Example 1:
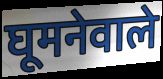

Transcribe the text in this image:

घूमनेवाले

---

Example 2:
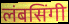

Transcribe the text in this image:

लंबसिंगी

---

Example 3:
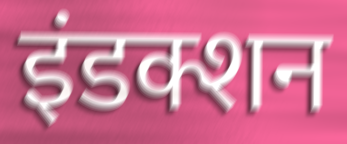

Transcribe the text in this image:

इंडक्शन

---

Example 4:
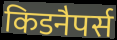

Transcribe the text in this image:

किडनैपर्स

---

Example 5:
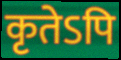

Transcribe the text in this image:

कृतेऽपि